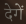
देगें